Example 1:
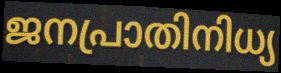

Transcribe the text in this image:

ജനപ്രാതിനിധ്യ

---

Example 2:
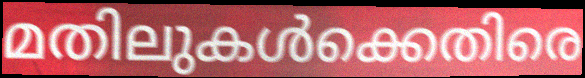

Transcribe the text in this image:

മതിലുകൾക്കെതിരെ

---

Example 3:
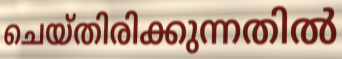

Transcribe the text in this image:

ചെയ്തിരിക്കുന്നതിൽ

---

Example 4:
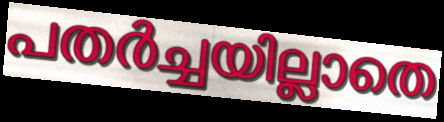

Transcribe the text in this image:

പതർച്ചയില്ലാതെ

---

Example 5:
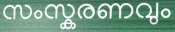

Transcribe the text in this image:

സംസ്കരണവും